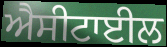
ਐਸੀਟਾਈਲ